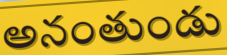
అనంతుండు